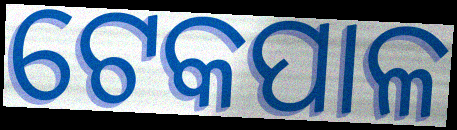
ଟେକପାଳ